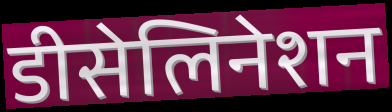
डीसेलिनेशन